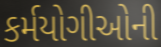
કર્મયોગીઓની